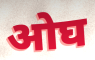
ओघ